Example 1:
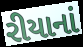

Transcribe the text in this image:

રીયાનાં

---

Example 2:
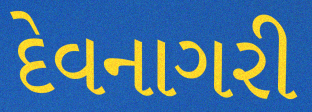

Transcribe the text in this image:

દેવનાગરી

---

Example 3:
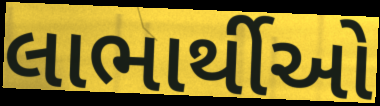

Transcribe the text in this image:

લાભાર્થીઓ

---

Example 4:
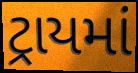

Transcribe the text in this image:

ટ્રાયમાં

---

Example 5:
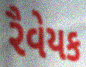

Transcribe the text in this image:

રૈવેયક